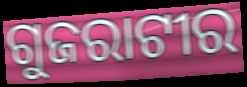
ଗୁଜରାଟୀର